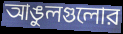
আঙুলগুলোর